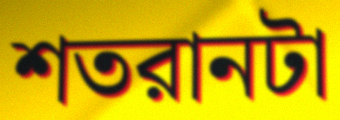
শতরানটা